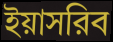
ইয়াসরিব